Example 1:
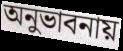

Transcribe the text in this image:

অনুভাবনায়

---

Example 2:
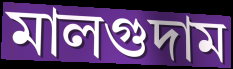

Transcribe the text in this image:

মালগুদাম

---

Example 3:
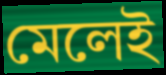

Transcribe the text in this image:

মেলেই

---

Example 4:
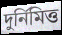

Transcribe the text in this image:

দুর্নিমিত্ত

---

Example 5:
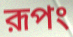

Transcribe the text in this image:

রূপং